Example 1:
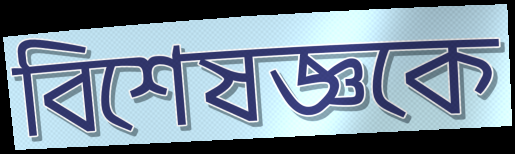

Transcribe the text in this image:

বিশেষজ্ঞকে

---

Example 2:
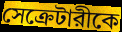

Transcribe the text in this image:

সেক্রেটারীকে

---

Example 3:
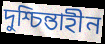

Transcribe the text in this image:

দুশ্চিন্তাহীন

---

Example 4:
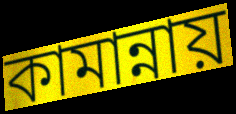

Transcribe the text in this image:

কামান্নায়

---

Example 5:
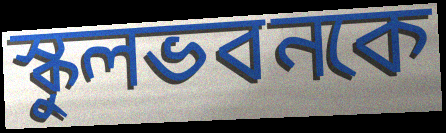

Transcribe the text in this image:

স্কুলভবনকে